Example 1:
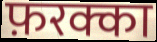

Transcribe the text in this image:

फ़रक्का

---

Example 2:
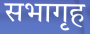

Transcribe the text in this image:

सभागृह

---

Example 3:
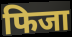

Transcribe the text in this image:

फिजा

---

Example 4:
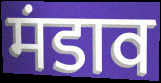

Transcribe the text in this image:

मंडाव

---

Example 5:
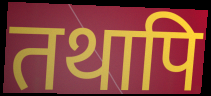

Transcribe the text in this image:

तथापि